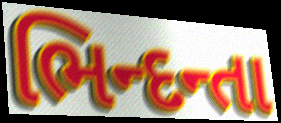
ભિન્દન્તા